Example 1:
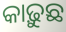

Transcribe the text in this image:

କାଢ଼ୁଛ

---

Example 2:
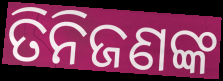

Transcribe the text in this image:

ତିନିଜଣଙ୍କ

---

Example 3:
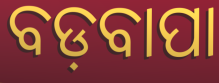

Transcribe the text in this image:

ବଡ଼ବାପା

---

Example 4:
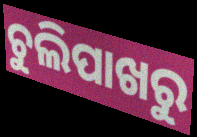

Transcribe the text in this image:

ଚୁଲିପାଖରୁ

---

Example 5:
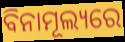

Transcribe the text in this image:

ବିନାମୂଲ୍ୟରେ